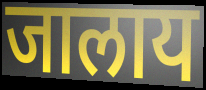
जालाय